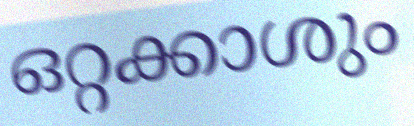
ഒറ്റക്കാശും